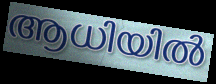
ആധിയിൽ